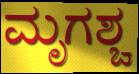
ಮೃಗಶ್ಚ